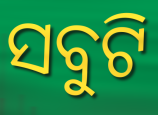
ସବୁଟି